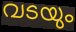
വടയും